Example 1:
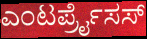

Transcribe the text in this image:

ಎಂಟರ್ಪ್ರೈಸಸ್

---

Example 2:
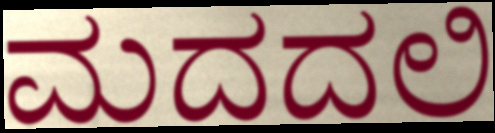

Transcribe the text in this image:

ಮದದಲಿ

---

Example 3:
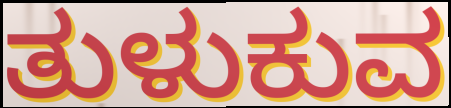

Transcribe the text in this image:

ತುಳುಕುವ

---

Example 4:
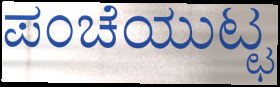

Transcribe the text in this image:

ಪಂಚೆಯುಟ್ಟ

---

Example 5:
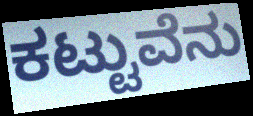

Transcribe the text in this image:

ಕಟ್ಟುವೆನು